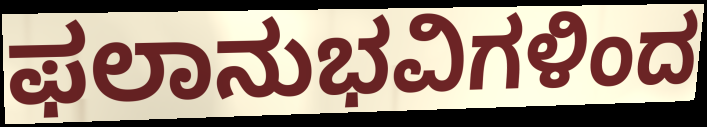
ಫಲಾನುಭವಿಗಳಿಂದ